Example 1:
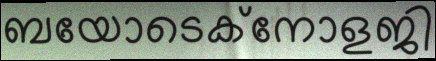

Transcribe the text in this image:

ബയോടെക്നോളജി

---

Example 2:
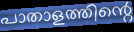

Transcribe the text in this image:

പാതാളത്തിന്റെ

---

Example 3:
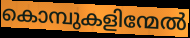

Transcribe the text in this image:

കൊമ്പുകളിന്മേൽ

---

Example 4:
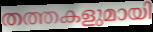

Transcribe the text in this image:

തത്തകളുമായി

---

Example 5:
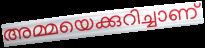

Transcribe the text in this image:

അമ്മയെക്കുറിച്ചാണ്